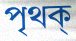
পৃথক্